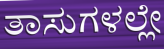
ತಾಸುಗಳಲ್ಲೇ